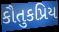
કૌતુકપ્રિય